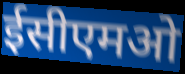
ईसीएमओ